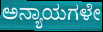
ಅನ್ಯಾಯಗಳೇ